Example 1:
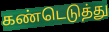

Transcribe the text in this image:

கண்டெடுத்து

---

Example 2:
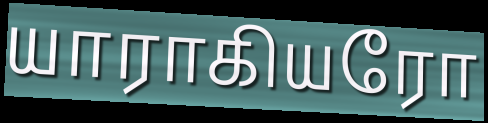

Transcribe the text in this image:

யாராகியரோ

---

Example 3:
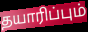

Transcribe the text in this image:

தயாரிப்பும்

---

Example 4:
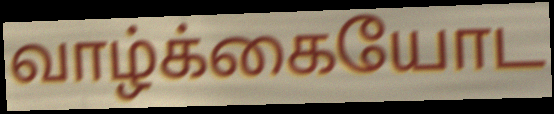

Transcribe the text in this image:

வாழ்க்கையோட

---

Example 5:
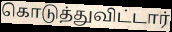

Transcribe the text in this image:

கொடுத்துவிட்டார்